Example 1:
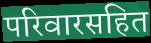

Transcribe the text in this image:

परिवारसहित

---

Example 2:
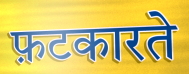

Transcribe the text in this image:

फ़टकारते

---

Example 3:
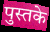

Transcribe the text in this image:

पुस्तके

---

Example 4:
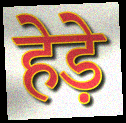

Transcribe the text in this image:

हेड़े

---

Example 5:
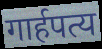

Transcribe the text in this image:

गार्हपत्य